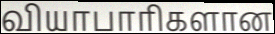
வியாபாரிகளான